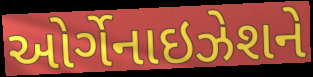
ઓર્ગેનાઇઝેશને